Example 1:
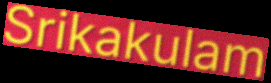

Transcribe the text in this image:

Srikakulam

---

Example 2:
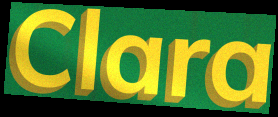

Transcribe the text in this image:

Clara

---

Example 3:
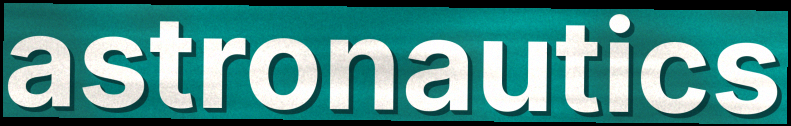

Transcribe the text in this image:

astronautics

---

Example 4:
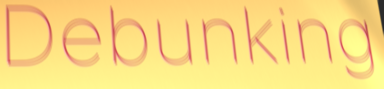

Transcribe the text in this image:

Debunking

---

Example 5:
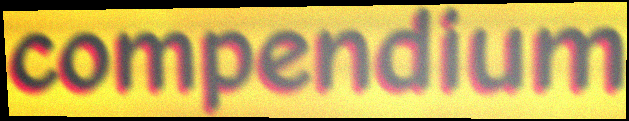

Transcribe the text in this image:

compendium